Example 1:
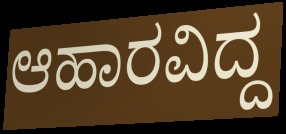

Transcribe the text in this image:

ಆಹಾರವಿದ್ದ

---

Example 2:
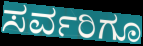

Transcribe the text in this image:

ಸರ್ವರಿಗೂ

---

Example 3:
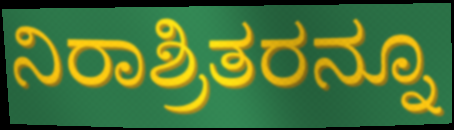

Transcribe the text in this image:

ನಿರಾಶ್ರಿತರನ್ನೂ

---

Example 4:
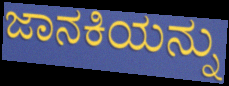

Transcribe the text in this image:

ಜಾನಕಿಯನ್ನು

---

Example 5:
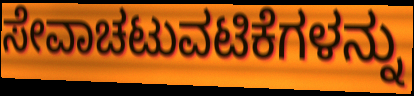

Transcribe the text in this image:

ಸೇವಾಚಟುವಟಿಕೆಗಳನ್ನು